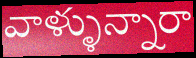
వాళ్ళున్నారా